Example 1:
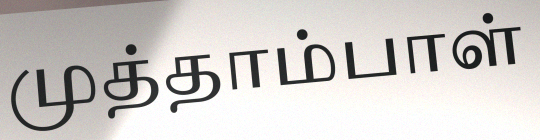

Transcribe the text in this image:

முத்தாம்பாள்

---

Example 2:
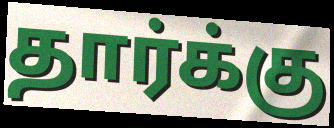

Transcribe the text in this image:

தார்க்கு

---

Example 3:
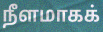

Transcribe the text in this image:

நீளமாகக்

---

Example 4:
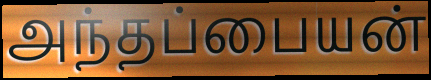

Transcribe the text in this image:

அந்தப்பையன்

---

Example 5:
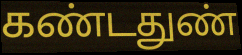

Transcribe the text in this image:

கண்டதுண்